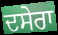
ਦਸੇਰਾ